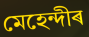
মেহেন্দীৰ